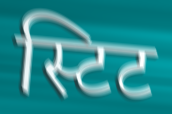
स्टिट